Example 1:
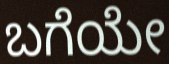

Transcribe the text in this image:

ಬಗೆಯೇ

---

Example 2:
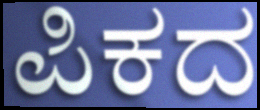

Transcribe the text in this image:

ಪಿಕದ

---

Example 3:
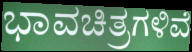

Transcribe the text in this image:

ಭಾವಚಿತ್ರಗಳಿವೆ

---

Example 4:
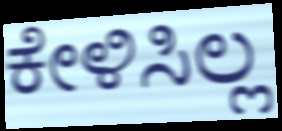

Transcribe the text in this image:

ಕೇಳಿಸಿಲ್ಲ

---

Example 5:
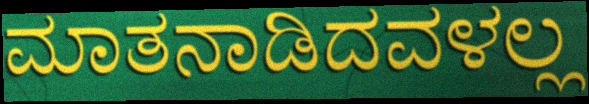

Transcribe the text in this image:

ಮಾತನಾಡಿದವಳಲ್ಲ